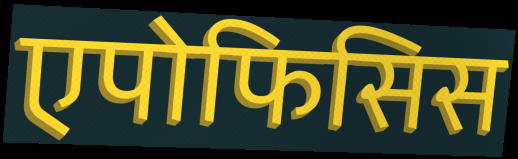
एपोफिसिस